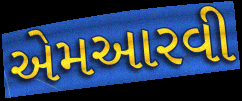
એમઆરવી